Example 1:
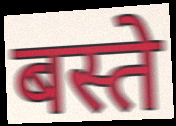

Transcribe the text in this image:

बस्ते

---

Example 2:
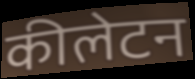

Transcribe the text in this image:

कीलेटन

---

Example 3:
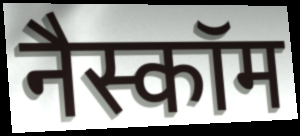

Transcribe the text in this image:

नैस्कॉम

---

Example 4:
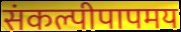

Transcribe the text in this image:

संकल्पीपापमय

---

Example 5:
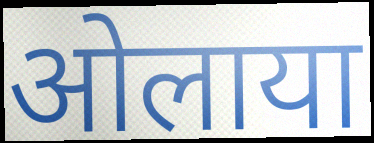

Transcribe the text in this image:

ओलाया